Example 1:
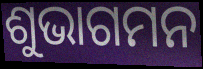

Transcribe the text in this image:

ଶୁଭାଗମନ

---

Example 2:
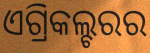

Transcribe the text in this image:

ଏଗ୍ରିକଲ୍ଚରର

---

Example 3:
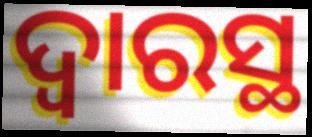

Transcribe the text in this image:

ଦ୍ବାରସ୍ଥ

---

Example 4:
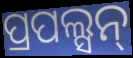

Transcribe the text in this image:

ପ୍ରପଲ୍ସନ୍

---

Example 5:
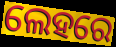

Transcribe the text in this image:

ଲେହରେ